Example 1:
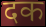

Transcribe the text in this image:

दक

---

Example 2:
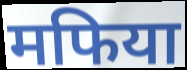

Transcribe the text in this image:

मफिया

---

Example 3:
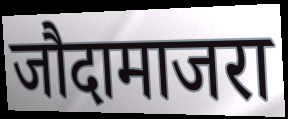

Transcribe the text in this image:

जौदामाजरा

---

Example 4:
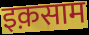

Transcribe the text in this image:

इक़साम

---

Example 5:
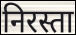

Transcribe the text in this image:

निरस्ता